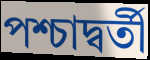
পশ্চাদ্বর্তী